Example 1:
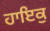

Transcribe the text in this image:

ਹਾਇਕੁ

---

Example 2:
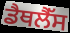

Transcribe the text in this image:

ਡੈਥਲੈੱਸ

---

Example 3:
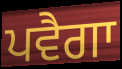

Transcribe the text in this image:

ਪਵੈਗਾ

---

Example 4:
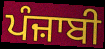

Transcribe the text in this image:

ਪੰਜ਼ਾਬੀ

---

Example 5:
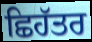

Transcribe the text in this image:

ਛਿਹੱਤਰ